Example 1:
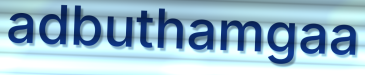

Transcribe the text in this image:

adbuthamgaa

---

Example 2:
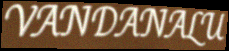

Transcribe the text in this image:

VANDANALU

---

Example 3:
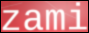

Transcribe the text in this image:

zami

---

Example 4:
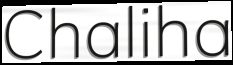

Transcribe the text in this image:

Chaliha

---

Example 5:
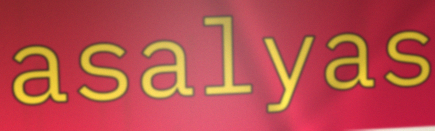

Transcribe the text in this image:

asalyas